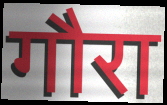
गौरा